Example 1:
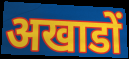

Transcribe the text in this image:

अखाडों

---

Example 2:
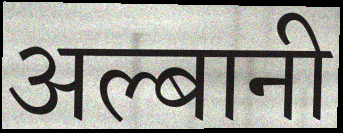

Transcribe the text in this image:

अल्बानी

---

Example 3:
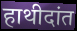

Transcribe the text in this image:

हाथीदांत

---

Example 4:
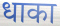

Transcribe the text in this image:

धाका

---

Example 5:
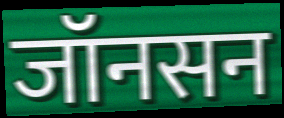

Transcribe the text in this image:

जॉनसन